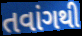
તવાંગથી